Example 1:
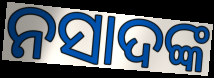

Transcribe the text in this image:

ନସାଦଙ୍କ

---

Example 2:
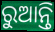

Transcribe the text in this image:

ରୁଆନ୍ତି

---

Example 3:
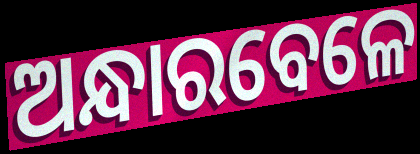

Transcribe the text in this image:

ଅନ୍ଧାରବେଳେ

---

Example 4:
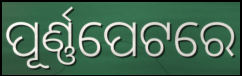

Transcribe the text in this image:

ପୂର୍ଣ୍ଣପେଟରେ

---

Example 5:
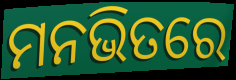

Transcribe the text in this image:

ମନଭିତରେ